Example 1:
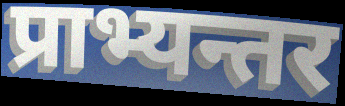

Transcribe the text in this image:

प्राभ्यन्तर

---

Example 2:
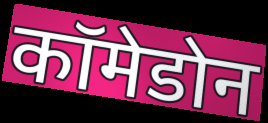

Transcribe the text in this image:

कॉमेडोन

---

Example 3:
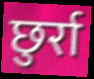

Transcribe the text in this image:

छुर्रा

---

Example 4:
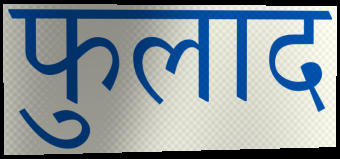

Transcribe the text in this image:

फुलाद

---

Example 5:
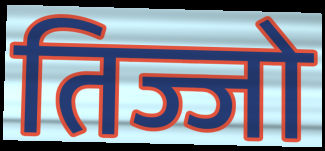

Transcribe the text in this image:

तिज्जो